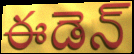
ఈడెన్